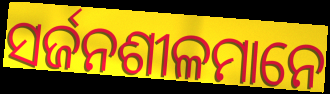
ସର୍ଜନଶୀଳମାନେ